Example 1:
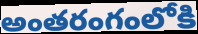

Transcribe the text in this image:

అంతరంగంలోకి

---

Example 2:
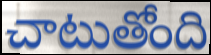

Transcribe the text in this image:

చాటుతోంది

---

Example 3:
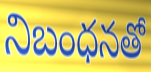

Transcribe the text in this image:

నిబంధనతో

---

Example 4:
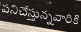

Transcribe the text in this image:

పనిచేస్తున్నవారికి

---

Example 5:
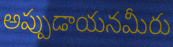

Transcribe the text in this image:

అప్పుడాయనమీరు